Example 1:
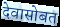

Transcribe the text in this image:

देवासोबत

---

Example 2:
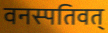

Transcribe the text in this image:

वनस्पतिवत्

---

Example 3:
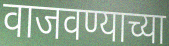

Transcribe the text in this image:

वाजवण्याच्या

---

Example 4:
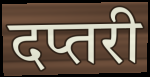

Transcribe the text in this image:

दप्तरी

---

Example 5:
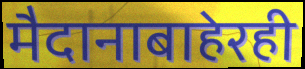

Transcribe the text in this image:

मैदानाबाहेरही